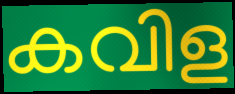
കവിള